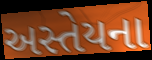
અસ્તેયના